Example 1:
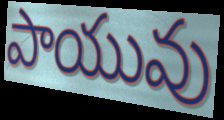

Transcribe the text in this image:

పాయువు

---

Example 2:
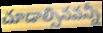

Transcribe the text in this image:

చూడాల్సినవన్నీ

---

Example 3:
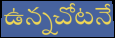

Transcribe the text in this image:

ఉన్నచోటనే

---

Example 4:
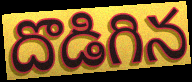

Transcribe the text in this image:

దొడిగిన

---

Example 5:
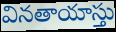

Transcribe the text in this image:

వినతాయాస్తు